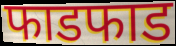
फाडफाड